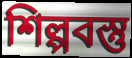
শিল্পবস্তু